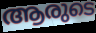
ആരുടെ